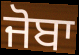
ਜੋਬਾ